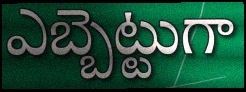
ఎబ్బెట్టుగా